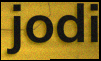
jodi